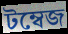
টম্বেজ